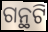
ଗନ୍ଥଟି